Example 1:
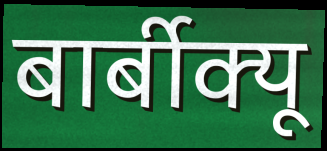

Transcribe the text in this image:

बार्बीक्यू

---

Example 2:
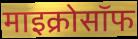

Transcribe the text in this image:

माइक्रोसॉफ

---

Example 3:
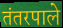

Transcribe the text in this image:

तंतरपाले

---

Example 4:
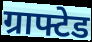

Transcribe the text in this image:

ग्राफ्टेड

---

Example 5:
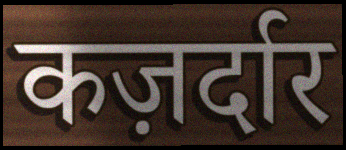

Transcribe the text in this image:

कज़र्दार